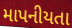
માપનીયતા